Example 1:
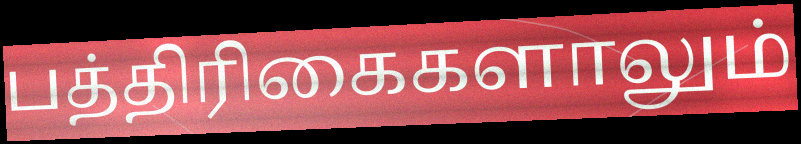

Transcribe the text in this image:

பத்திரிகைகளாலும்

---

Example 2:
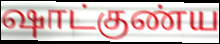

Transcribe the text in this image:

ஷாட்குண்ய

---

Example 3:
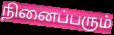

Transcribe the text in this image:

நினைப்பரும்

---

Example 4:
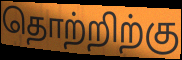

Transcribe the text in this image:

தொற்றிற்கு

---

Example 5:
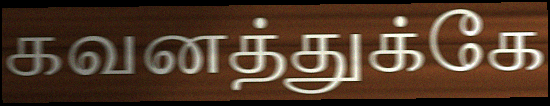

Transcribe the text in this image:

கவனத்துக்கே